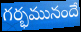
గర్భమునందే